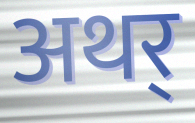
अथर्